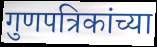
गुणपत्रिकांच्या